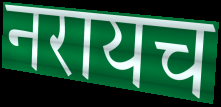
नरायच